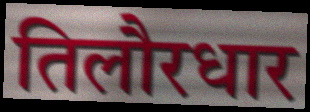
तिलौरधार